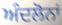
ਅੰਦਲੋਨਾਂ